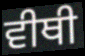
ਵੀਥੀ